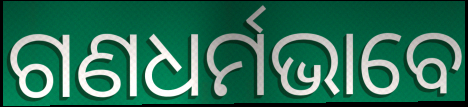
ଗଣଧର୍ମଭାବେ